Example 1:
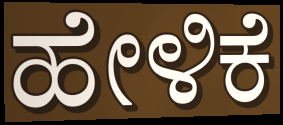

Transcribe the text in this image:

ಹೇಳಿಕೆ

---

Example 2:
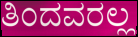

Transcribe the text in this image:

ತಿಂದವರಲ್ಲ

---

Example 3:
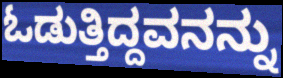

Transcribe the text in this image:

ಓಡುತ್ತಿದ್ದವನನ್ನು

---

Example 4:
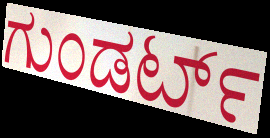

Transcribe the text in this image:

ಗುಂಡರ್ಟ್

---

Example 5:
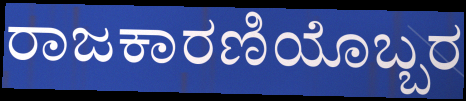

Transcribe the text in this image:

ರಾಜಕಾರಣಿಯೊಬ್ಬರ